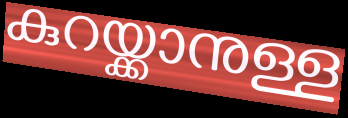
കുറയ്ക്കാനുള്ള